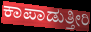
ಕಾಪಾಡುತ್ತೀರಿ